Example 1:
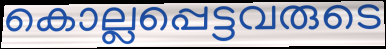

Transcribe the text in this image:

കൊല്ലപ്പെട്ടവരുടെ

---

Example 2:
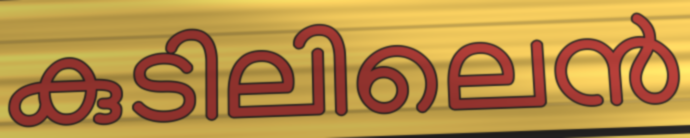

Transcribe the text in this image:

കുടിലിലെൻ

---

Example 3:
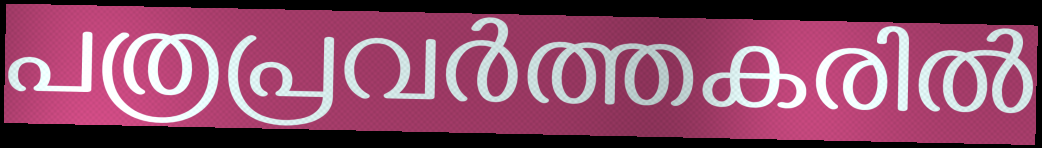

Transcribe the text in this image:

പത്രപ്രവർത്തകരിൽ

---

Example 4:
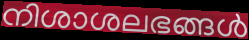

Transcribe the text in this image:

നിശാശലഭങ്ങൾ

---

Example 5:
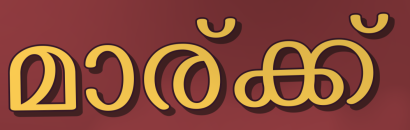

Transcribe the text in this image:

മാര്ക്ക്